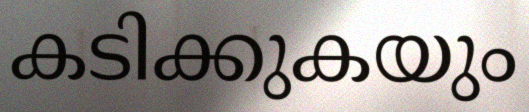
കടിക്കുകയും